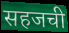
सहजची